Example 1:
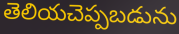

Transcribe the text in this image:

తెలియచెప్పబడును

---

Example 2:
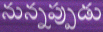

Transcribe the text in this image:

నున్నప్పుడు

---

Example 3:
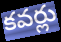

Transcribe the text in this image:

కవర్లు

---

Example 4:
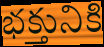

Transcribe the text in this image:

భక్తునికి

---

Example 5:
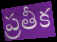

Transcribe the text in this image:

ప్రతీక